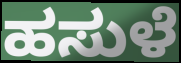
ಹಸುಳೆ